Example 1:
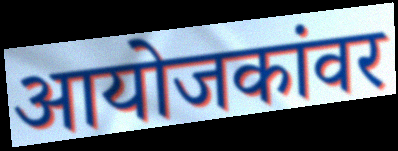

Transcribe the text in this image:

आयोजकांवर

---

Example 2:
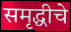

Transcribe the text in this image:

समृद्धीचे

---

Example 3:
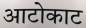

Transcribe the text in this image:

आटोकाट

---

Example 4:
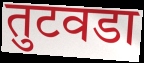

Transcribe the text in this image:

तुटवडा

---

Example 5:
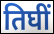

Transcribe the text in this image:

तिघीं